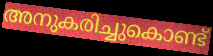
അനുകരിച്ചുകൊണ്ട്